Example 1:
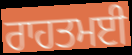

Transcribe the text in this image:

ਰਾਹਤਮਈ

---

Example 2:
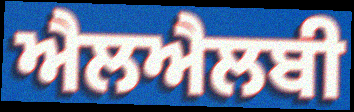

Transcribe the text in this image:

ਐਲਐਲਬੀ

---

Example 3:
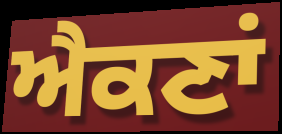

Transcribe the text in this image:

ਐਕਣਾਂ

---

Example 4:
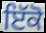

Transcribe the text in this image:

ਇੱਕੋ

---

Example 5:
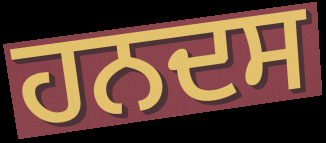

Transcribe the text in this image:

ਹਨਦਸ